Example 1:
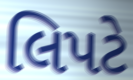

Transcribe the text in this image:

લિપટે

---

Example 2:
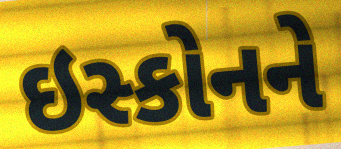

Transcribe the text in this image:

ઇસ્કોનને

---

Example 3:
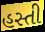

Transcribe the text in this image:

હસ્તી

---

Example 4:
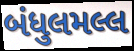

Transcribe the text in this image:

બંધુલમલ્લ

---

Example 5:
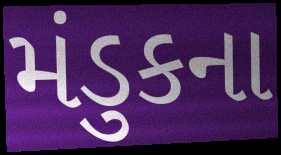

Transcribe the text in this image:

મંડુકના